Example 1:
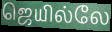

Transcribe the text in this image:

ஜெயில்லே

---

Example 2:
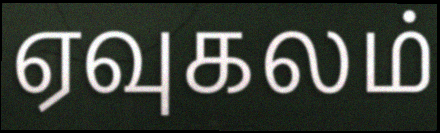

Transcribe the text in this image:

ஏவுகலம்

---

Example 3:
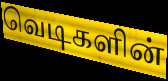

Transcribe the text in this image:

வெடிகளின்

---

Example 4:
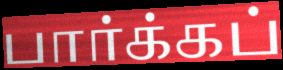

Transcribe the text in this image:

பார்க்கப்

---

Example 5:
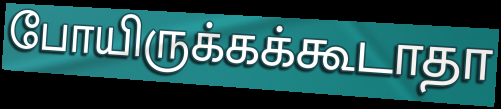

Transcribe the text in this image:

போயிருக்கக்கூடாதா